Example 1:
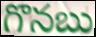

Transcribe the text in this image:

గొనబు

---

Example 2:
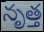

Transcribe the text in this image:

నృత్త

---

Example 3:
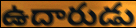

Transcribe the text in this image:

ఉదారుడు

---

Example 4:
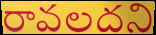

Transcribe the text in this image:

రావలదని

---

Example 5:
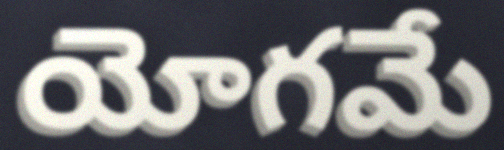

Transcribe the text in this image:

యోగమే